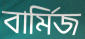
বাৰ্মিজ